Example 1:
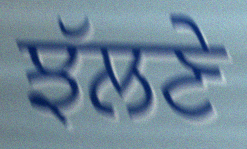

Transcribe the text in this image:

ਝੱਲਣੇ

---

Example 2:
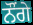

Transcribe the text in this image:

ਨੌਂਗੇ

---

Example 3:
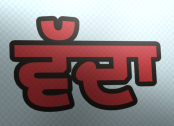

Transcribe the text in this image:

ਵੱਦਾ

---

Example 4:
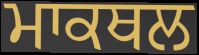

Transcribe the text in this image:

ਮਾਕਥਲ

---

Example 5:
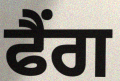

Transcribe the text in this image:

ਫੈਂਗ